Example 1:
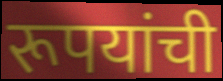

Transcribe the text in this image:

रूपयांची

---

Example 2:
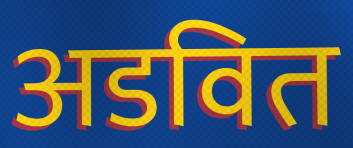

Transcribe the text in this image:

अडवित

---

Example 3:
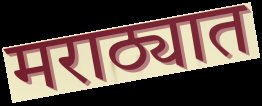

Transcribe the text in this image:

मराठ्यात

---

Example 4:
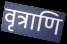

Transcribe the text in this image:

वृत्राणि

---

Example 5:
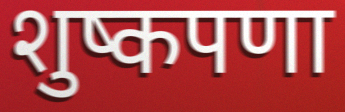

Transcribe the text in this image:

शुष्कपणा